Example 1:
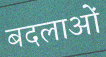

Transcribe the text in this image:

बदलाओं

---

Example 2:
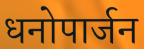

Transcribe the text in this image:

धनोपार्जन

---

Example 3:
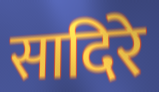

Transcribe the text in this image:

सादिरे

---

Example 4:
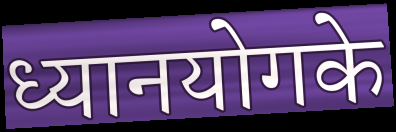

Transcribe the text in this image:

ध्यानयोगके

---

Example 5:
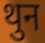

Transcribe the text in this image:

थुन